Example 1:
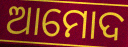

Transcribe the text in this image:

ଆମୋଦ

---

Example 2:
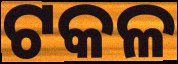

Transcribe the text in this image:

ଟକଳ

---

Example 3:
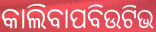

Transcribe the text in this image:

କାଲିବାପବିଉଟିଭ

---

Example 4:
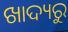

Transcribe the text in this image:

ଖାଦ୍ୟରୁ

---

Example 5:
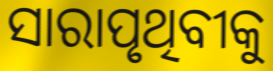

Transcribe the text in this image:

ସାରାପୃଥିବୀକୁ